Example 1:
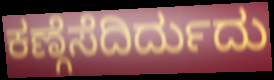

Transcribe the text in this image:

ಕಣ್ಗೆಸೆದಿರ್ದುದು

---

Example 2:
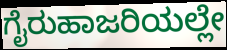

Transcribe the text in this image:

ಗೈರುಹಾಜರಿಯಲ್ಲೇ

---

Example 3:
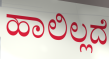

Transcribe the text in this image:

ಹಾಲಿಲ್ಲದೆ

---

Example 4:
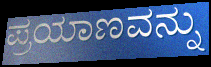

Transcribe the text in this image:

ಪ್ರಯಾಣವನ್ನು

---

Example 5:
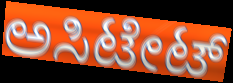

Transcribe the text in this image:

ಅಸಿಟೇಟ್